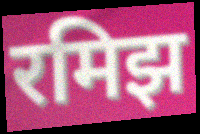
रमिझ